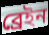
ব্ৰেইন